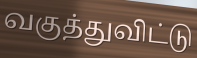
வகுத்துவிட்டு